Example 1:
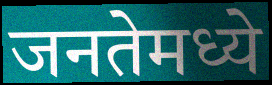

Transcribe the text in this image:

जनतेमध्ये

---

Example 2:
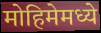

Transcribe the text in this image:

मोहिमेमध्ये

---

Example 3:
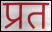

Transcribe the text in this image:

प्रत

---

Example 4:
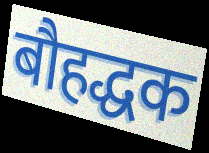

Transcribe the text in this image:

बौहद्धक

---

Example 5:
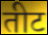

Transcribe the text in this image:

तीट